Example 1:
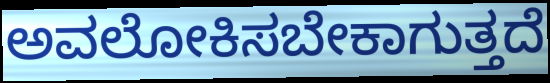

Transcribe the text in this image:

ಅವಲೋಕಿಸಬೇಕಾಗುತ್ತದೆ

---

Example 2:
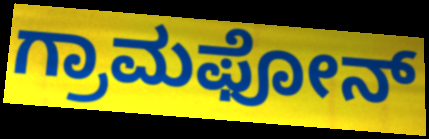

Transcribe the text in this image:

ಗ್ರಾಮಫೋನ್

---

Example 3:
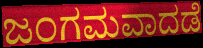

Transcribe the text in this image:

ಜಂಗಮವಾದಡೆ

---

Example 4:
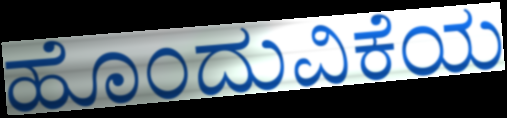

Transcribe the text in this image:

ಹೊಂದುವಿಕೆಯ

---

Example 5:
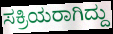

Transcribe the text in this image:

ಸಕ್ರಿಯರಾಗಿದ್ದು